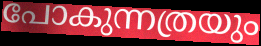
പോകുന്നത്രയും